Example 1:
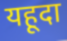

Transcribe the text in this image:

यहूदा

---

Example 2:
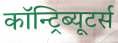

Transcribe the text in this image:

कॉन्ट्रिब्यूटर्स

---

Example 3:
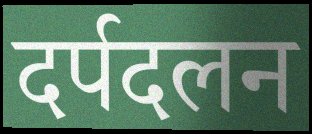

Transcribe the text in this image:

दर्पदलन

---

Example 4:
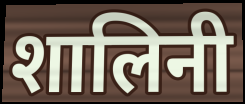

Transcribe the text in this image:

शालिनी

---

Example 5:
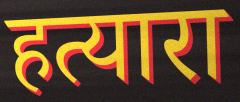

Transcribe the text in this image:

हत्यारा